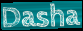
Dasha